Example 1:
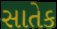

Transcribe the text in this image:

સાતેક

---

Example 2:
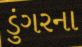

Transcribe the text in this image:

ડુંગરના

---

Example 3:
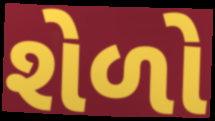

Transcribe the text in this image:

શેળો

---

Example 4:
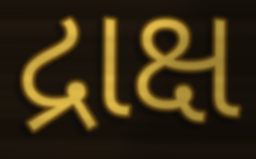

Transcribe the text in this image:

દ્રાક્ષ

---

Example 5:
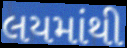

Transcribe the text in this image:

લયમાંથી